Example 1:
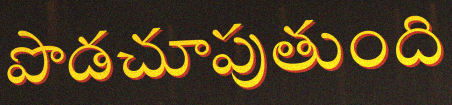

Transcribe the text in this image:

పొడచూపుతుంది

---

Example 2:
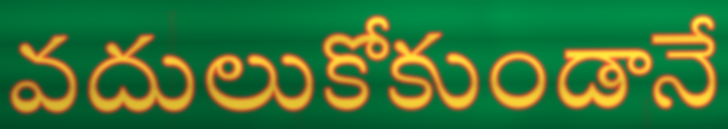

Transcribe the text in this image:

వదులుకోకుండానే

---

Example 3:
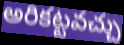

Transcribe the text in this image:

అరికట్టవచ్చు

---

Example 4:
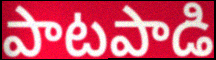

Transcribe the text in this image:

పాటపాడి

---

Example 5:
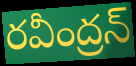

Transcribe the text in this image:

రవీంద్రన్